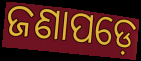
ଜଣାପଡ଼େ